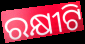
ରକ୍ଷୀଟି